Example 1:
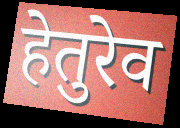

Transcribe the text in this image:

हेतुरेव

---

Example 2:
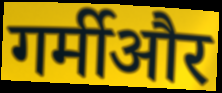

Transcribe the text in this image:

गर्मीऔर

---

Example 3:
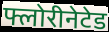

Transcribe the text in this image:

फ्लोरीनेटेड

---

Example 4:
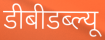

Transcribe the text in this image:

डीबीडब्ल्यू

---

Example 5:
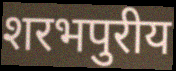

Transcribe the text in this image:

शरभपुरीय